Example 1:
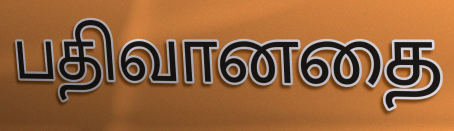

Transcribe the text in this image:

பதிவானதை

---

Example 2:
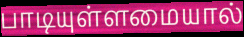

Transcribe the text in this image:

பாடியுள்ளமையால்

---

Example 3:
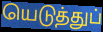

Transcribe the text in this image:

யெடுத்துப்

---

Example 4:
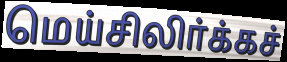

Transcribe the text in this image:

மெய்சிலிர்க்கச்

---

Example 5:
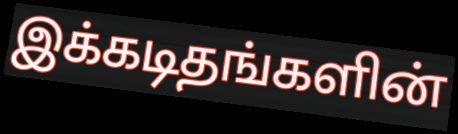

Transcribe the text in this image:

இக்கடிதங்களின்